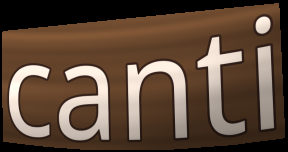
canti